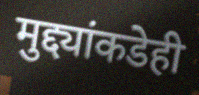
मुद्द्यांकडेही